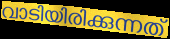
വാടിയിരിക്കുന്നത്